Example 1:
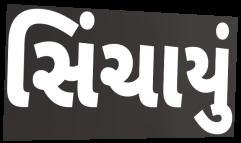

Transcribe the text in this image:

સિંચાયું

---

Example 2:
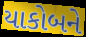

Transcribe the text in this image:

યાકોબને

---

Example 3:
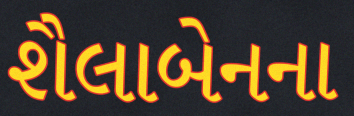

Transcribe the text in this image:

શૈલાબેનના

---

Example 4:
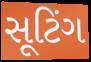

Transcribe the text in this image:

સૂટિંગ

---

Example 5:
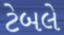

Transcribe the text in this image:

ટેબલે